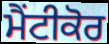
ਮੈਂਟੀਕੋਰ